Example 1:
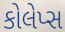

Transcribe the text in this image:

કોલેપ્સ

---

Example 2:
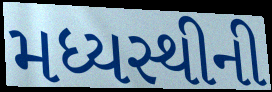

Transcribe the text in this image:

મધ્યસ્થીની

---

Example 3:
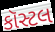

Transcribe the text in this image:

કૉસ્ટલ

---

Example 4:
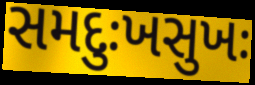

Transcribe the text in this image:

સમદુઃખસુખઃ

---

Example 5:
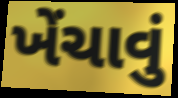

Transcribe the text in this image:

ખેંચાવું